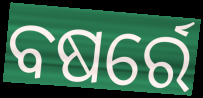
ବଷର୍ରେ